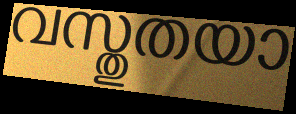
വസ്തുതയാ